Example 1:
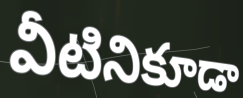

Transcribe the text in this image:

వీటినికూడా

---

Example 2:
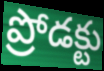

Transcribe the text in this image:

ప్రోడక్టు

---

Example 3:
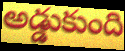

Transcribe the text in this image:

అడ్డుకుంది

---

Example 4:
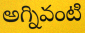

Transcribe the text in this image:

అగ్నివంటి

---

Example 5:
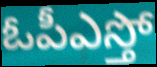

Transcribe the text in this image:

ఓపీఎస్తో